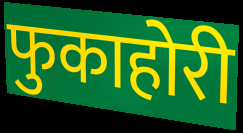
फुकाहोरी